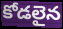
కోడలైన